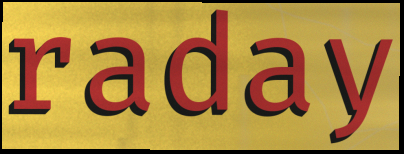
raday